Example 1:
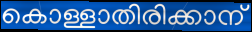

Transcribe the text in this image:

കൊള്ളാതിരിക്കാന്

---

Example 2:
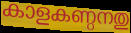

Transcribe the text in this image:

കാളകണ്ഠനതു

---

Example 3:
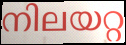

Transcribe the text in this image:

നിലയറ്റ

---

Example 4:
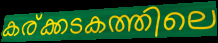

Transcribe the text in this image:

കര്ക്കടകത്തിലെ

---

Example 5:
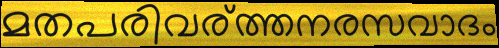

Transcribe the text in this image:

മതപരിവര്ത്തനരസവാദം